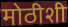
मोठीशी